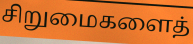
சிறுமைகளைத்